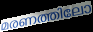
മരണത്തിലോ